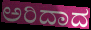
ಅರಿದಾದ